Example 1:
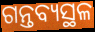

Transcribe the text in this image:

ଗନ୍ତବ୍ୟସ୍ଥଳ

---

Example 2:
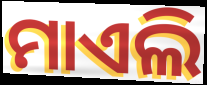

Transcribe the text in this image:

ମାଏଲି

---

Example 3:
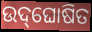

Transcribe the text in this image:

ଉଦ୍‌ଘୋଷିତ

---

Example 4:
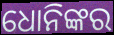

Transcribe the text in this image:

ଧୋନିଙ୍କର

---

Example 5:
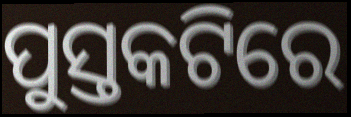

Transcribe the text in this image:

ପୁସ୍ତକଟିରେ